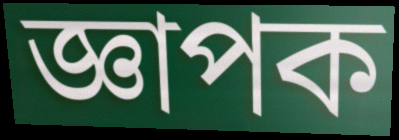
জ্ঞাপক